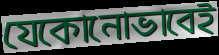
যেকোনোভাবেই